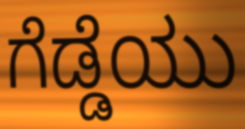
ಗೆಡ್ಡೆಯು